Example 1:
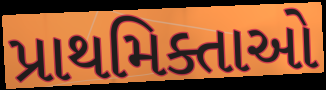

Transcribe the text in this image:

પ્રાથમિક્તાઓ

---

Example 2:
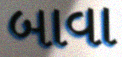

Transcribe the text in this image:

બાવા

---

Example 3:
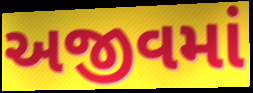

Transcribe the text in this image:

અજીવમાં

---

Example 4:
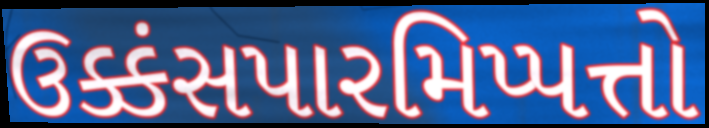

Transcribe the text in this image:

ઉક્કંસપારમિપ્પત્તો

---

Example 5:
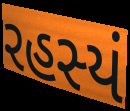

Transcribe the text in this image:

રહસ્યં